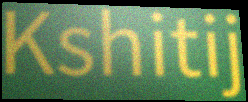
Kshitij